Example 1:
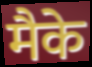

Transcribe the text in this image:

मैके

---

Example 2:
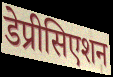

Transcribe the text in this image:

डेप्रीसिएशन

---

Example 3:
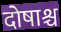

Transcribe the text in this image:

दोषाश्च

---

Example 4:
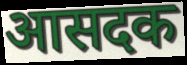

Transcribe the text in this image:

आसदक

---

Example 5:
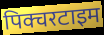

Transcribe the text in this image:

पिक्चरटाइम